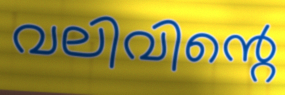
വലിവിന്റെ